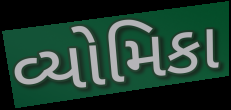
વ્યોમિકા